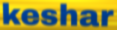
keshar